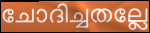
ചോദിച്ചതല്ലേ